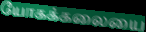
யோகக்கலையை